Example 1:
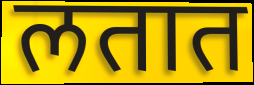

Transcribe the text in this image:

लतात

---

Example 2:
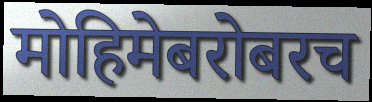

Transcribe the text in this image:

मोहिमेबरोबरच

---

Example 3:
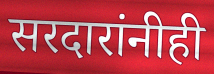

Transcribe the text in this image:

सरदारांनीही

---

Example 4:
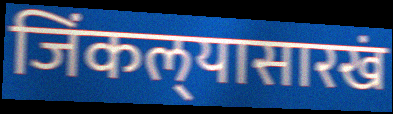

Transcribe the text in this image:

जिंकल्यासारखं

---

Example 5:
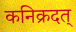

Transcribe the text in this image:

कनिक्रदत्